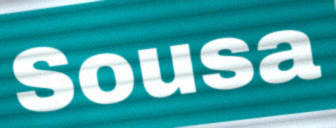
Sousa